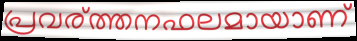
പ്രവര്ത്തനഫലമായാണ്